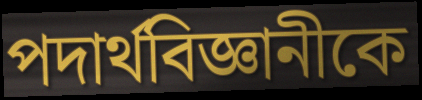
পদার্থবিজ্ঞানীকে